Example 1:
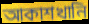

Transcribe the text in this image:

আকাশখানি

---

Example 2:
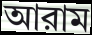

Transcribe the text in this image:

আরাম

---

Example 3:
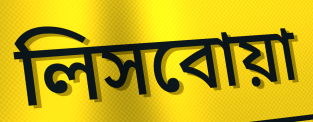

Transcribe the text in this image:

লিসবোয়া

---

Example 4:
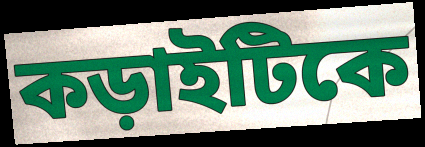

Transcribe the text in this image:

কড়াইটিকে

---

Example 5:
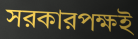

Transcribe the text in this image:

সরকারপক্ষই